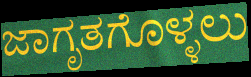
ಜಾಗೃತಗೊಳ್ಳಲು